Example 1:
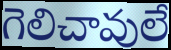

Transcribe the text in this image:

గెలిచావులే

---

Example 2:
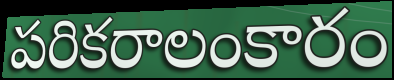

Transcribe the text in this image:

పరికరాలంకారం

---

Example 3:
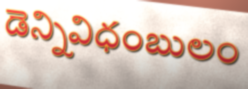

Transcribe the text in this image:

డెన్నివిధంబులం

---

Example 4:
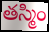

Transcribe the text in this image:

తస్మిం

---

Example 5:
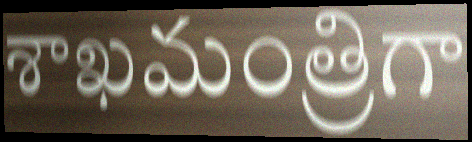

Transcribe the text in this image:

శాఖమంత్రిగా